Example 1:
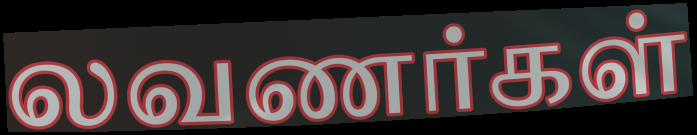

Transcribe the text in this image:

லவணர்கள்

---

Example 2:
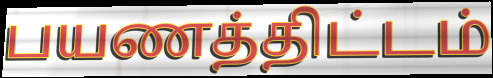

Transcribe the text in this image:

பயணத்திட்டம்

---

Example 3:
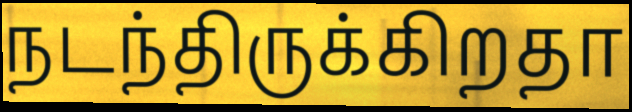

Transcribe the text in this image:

நடந்திருக்கிறதா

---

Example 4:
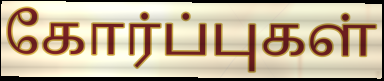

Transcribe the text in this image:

கோர்ப்புகள்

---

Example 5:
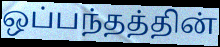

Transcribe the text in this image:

ஒப்பந்தத்தின்